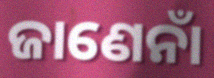
ଜାଣେନାଁ